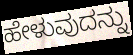
ಹೇಳುವುದನ್ನು